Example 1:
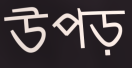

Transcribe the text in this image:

উপড়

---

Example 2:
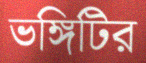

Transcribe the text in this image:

ভঙ্গিটির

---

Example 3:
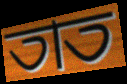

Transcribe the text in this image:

তাত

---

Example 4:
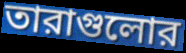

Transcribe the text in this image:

তারাগুলোর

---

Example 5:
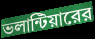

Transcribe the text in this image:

ভলান্টিয়ারের